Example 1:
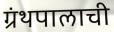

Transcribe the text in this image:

ग्रंथपालाची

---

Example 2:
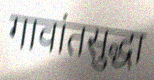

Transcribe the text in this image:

गावांतसुद्धा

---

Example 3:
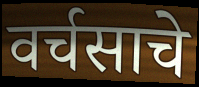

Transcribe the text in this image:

वर्चसाचे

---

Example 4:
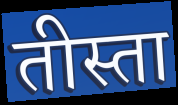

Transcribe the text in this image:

तीस्ता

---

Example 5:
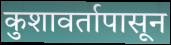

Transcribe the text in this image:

कुशावर्तापासून